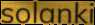
solanki